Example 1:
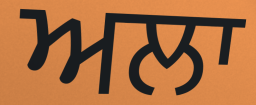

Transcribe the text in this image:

ਅਲਾ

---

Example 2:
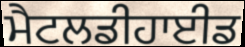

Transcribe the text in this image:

ਮੈਟਲਡੀਹਾਈਡ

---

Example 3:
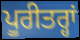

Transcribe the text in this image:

ਪੂਰੀਤਰ੍ਹਾਂ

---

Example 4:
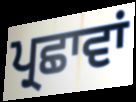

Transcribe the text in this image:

ਪ੍ਰਛਾਵਾਂ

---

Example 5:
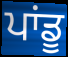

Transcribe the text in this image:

ਪਾਂਡੂ